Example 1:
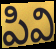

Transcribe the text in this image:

పివి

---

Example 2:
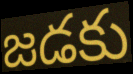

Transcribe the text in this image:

జడకు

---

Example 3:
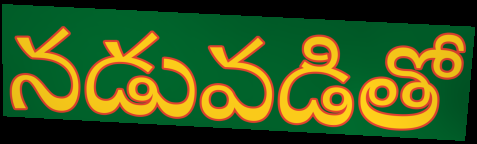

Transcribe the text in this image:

నడువడితో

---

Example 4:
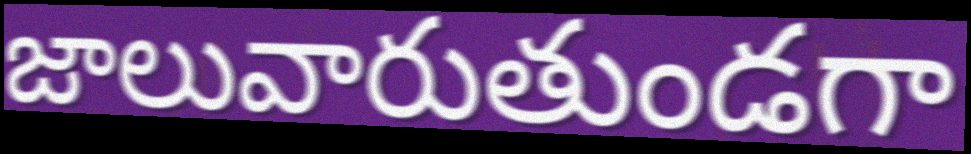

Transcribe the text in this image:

జాలువారుతుండగా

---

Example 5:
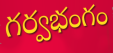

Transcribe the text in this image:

గర్వభంగం